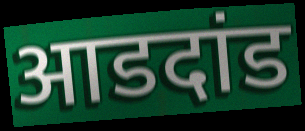
आडदांड